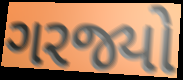
ગરજ્યો